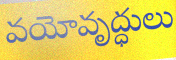
వయోవృద్ధులు